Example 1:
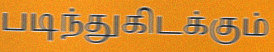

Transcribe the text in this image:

படிந்துகிடக்கும்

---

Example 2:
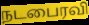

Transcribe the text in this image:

நடபைரவி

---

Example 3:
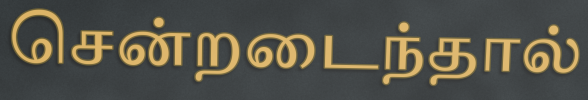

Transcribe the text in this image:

சென்றடைந்தால்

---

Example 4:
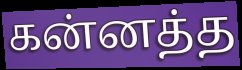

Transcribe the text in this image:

கன்னத்த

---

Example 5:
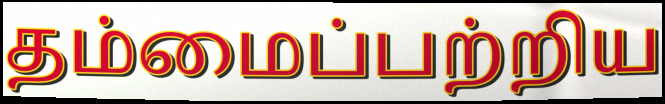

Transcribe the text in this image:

தம்மைப்பற்றிய